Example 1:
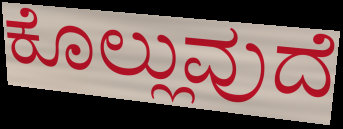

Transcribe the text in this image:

ಕೊಲ್ಲುವುದೆ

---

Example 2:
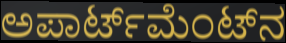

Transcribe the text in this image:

ಅಪಾರ್ಟ್‌ಮೆಂಟ್‌ನ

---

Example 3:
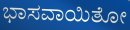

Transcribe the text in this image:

ಭಾಸವಾಯಿತೋ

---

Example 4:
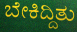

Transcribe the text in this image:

ಬೇಕಿದ್ದಿತು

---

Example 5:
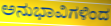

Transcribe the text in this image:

ಅನುಭಾವಿಗಳಿಂದ